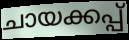
ചായക്കപ്പ്